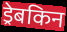
ड्रेबकिन